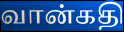
வான்கதி